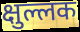
क्षुल्लक